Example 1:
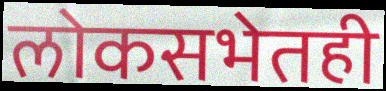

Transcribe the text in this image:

लोकसभेतही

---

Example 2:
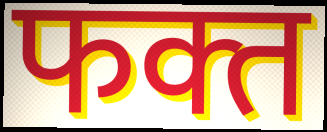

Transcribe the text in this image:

फक्‍त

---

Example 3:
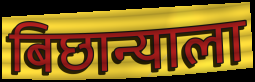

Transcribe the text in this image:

बिछान्याला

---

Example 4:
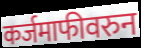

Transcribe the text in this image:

कर्जमाफीवरुन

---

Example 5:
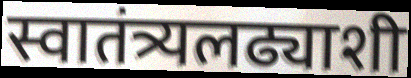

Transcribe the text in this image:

स्वातंत्र्यलढ्याशी